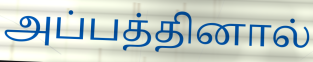
அப்பத்தினால்